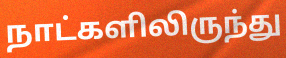
நாட்களிலிருந்து